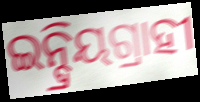
ଇନ୍ଦ୍ରିୟଗ୍ରାହୀ